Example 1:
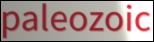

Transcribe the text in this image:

paleozoic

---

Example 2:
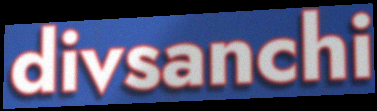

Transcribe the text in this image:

divsanchi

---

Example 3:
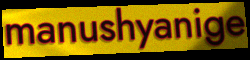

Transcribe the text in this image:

manushyanige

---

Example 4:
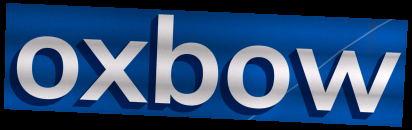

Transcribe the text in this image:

oxbow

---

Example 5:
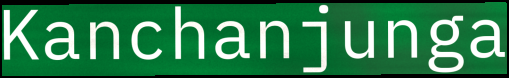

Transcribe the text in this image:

Kanchanjunga